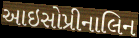
આઇસોપ્રીનાલિન